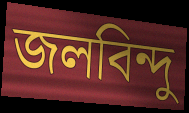
জলবিন্দু